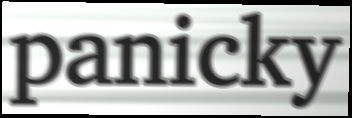
panicky